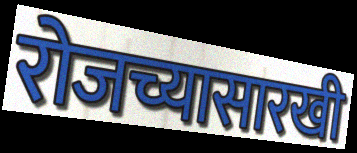
रोजच्यासारखी